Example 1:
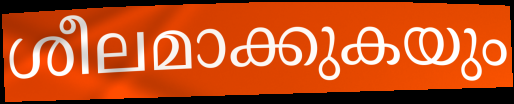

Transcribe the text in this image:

ശീലമാക്കുകയും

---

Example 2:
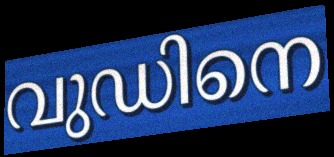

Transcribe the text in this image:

വുഡിനെ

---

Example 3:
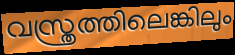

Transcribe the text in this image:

വസ്ത്രത്തിലെങ്കിലും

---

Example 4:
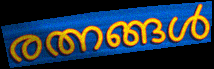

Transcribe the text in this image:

രത്നങ്ങൾ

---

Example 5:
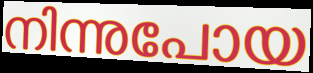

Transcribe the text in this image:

നിന്നുപോയ